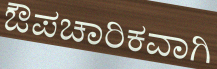
ಔಪಚಾರಿಕವಾಗಿ